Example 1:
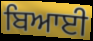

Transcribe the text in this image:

ਬਿਆਈ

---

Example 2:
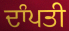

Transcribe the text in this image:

ਦਾੰਪਤੀ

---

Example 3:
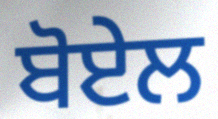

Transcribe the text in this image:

ਬੋਏਲ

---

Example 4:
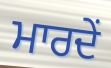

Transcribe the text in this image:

ਮਾਰਦੇਂ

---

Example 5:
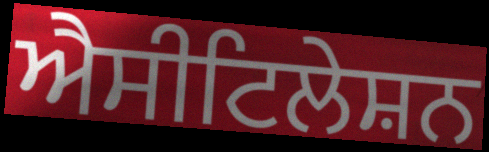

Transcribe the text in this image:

ਐਸੀਟਿਲੇਸ਼ਨ